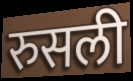
रुसली